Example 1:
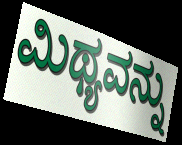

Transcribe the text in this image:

ಮಿಥ್ಯವನ್ನು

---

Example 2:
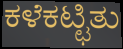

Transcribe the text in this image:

ಕಳೆಕಟ್ಟಿತು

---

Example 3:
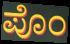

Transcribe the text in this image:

ಪೊಂ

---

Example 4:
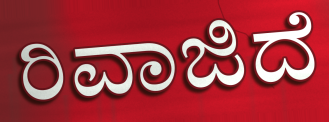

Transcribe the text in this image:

ರಿವಾಜಿದೆ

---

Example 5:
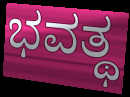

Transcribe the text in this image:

ಭವತ್ಥ